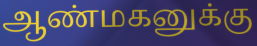
ஆண்மகனுக்கு